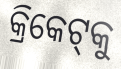
କ୍ରିକେଟ୍‌କୁ